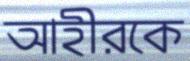
আহীরকে